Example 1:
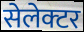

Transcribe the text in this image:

सेलेक्‍टर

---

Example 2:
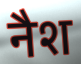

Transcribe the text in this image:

नैश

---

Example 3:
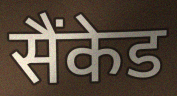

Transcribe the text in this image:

सैंकेड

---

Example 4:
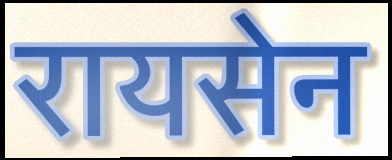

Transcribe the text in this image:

रायसेन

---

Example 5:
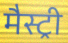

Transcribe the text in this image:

मैस्ट्री